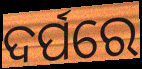
ଦର୍ପରେ